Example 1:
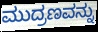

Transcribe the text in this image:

ಮುದ್ರಣವನ್ನು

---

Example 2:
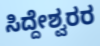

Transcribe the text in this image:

ಸಿದ್ದೇಶ್ವರರ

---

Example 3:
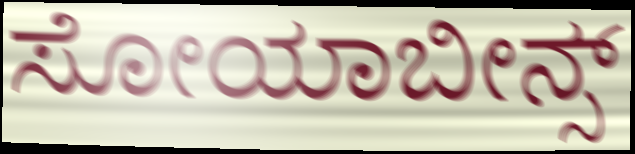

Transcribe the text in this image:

ಸೋಯಾಬೀನ್ಸ್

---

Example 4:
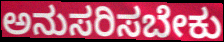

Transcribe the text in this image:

ಅನುಸರಿಸಬೇಕು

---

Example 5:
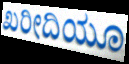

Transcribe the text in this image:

ಖರೀದಿಯೂ